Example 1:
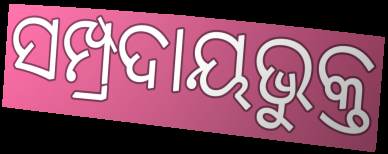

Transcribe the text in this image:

ସମ୍ପ୍ରଦାୟଭୁକ୍ତ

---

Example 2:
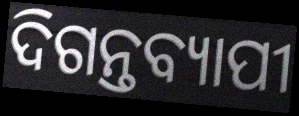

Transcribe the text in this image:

ଦିଗନ୍ତବ୍ୟାପୀ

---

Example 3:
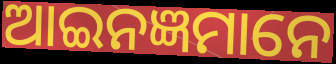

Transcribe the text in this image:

ଆଇନଜ୍ଞମାନେ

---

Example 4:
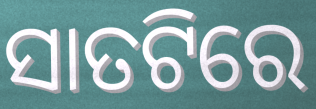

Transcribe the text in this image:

ସାତଟିରେ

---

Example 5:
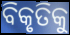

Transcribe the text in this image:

ବିକୃତିକୁ